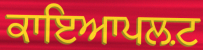
ਕਾਇਆਪਲ਼ਟ